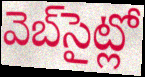
వెబ్‌సైట్లో